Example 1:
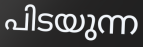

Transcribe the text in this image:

പിടയുന്ന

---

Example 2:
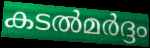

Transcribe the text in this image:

കടൽമർദ്ദം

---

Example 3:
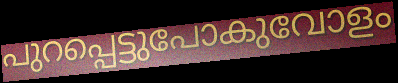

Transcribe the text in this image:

പുറപ്പെട്ടുപോകുവോളം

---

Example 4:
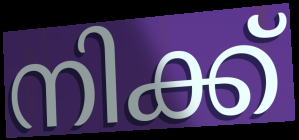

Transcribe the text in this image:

നിക്ക്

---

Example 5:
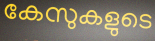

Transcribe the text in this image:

കേസുകളുടെ